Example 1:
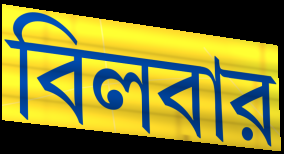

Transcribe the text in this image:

বিলবার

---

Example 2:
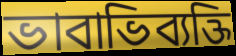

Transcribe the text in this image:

ভাবাভিব্যক্তি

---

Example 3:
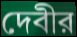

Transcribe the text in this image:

দেবীর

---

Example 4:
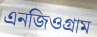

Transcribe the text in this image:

এনজিওগ্রাম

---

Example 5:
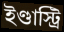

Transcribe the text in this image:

ইণ্ডাস্ট্রি